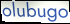
olubugo